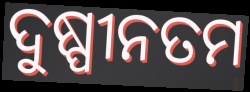
ଦୁଷ୍ପୀନତମ